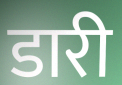
डारी